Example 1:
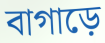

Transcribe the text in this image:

বাগাড়ে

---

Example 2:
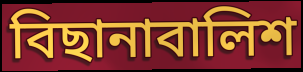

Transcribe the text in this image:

বিছানাবালিশ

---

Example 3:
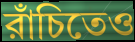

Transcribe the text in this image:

রাঁচিতেও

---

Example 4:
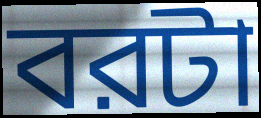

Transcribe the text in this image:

বরটা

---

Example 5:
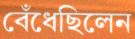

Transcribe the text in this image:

বেঁধেছিলেন